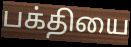
பக்தியை